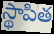
స్థాపిత